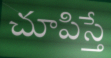
చూపిస్తే